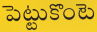
పెట్టుకొంటె